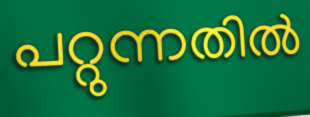
പറ്റുന്നതിൽ